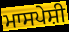
ਮਾਸਪੇਸ਼ੀ